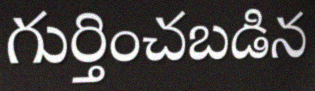
గుర్తించబడిన